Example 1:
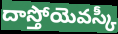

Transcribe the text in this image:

దాస్తోయెవస్కీ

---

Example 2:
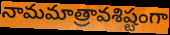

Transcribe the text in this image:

నామమాత్రావశిష్టంగా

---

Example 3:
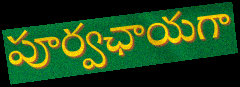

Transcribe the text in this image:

పూర్వఛాయగా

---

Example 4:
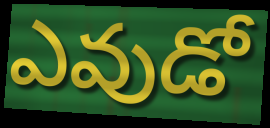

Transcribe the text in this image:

ఎవుడో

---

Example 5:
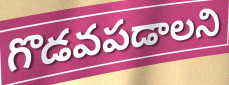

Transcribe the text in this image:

గొడవపడాలని